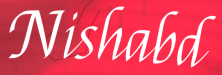
Nishabd